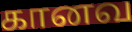
கானவ